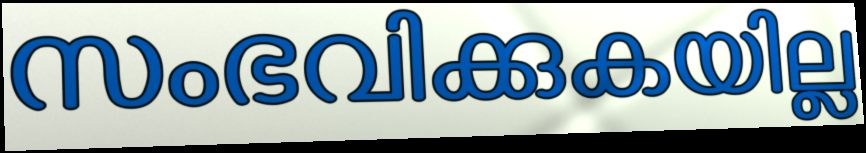
സംഭവിക്കുകയില്ല